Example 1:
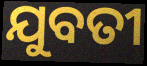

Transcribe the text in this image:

ଯୁବତୀ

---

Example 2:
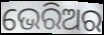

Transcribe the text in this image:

ଭେରିଅର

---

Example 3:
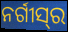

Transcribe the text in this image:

ନର୍ଗୀସ୍‍ର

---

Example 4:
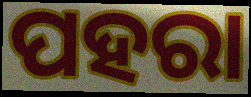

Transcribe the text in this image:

ପହରା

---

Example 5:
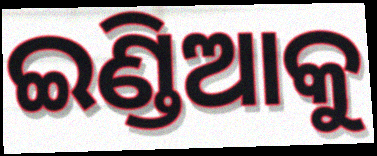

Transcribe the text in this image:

ଇଣ୍ଡିଆକୁ